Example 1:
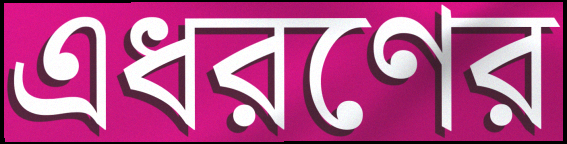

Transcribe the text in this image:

এধরণের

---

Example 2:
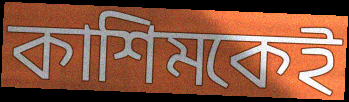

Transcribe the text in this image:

কাশিমকেই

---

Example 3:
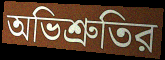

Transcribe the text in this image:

অভিশ্রুতির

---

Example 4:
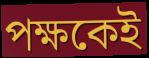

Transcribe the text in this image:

পক্ষকেই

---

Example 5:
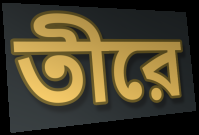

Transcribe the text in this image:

তীরে